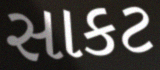
સાકટ